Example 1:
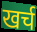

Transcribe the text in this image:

खर्च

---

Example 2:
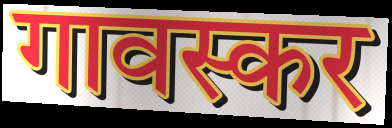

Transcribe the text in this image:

गावस्कर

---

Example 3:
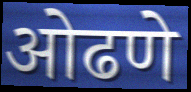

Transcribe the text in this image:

ओढणे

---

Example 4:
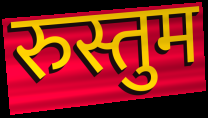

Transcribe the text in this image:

रुस्तुम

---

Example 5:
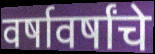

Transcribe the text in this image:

वर्षावर्षांचे